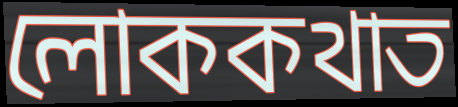
লোককথাত